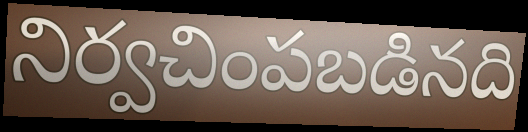
నిర్వచింపబడినది